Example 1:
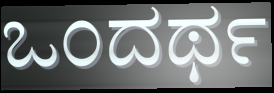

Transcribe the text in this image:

ಒಂದರ್ಥ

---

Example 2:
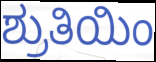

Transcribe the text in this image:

ಶ್ರುತಿಯಿಂ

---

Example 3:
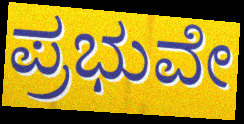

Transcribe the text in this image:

ಪ್ರಭುವೇ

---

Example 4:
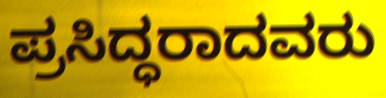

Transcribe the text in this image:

ಪ್ರಸಿದ್ಧರಾದವರು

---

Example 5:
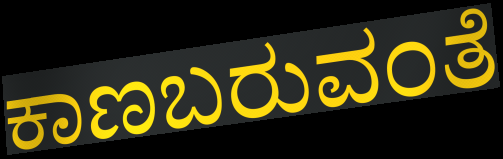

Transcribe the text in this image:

ಕಾಣಬರುವಂತೆ